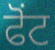
ਫੋਂਟ